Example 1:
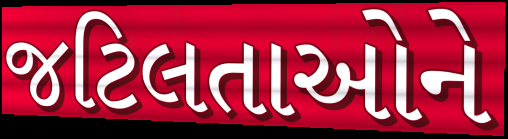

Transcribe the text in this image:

જટિલતાઓને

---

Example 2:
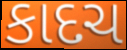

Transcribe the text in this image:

કાદચ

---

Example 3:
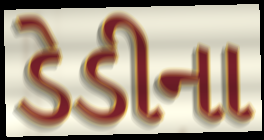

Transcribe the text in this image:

ડેડીના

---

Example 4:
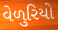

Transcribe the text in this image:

વેળુરિયો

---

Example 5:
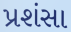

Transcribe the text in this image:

પ્રશંસા